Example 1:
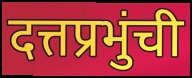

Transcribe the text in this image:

दत्तप्रभुंची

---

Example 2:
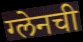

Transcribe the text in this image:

ग्लेनची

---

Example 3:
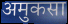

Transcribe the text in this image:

अमुकसा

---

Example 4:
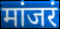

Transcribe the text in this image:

मांजरं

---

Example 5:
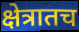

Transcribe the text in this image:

क्षेत्रातच